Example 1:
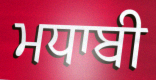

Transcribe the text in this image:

ਮਧਾਬੀ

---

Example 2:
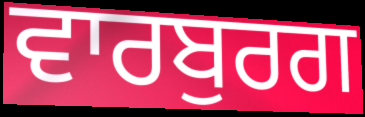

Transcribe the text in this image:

ਵਾਰਬੁਰਗ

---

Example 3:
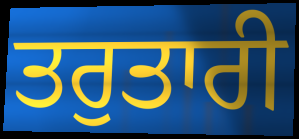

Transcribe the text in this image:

ਤਰੁਤਾਰੀ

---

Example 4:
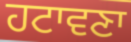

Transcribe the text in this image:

ਹਟਾਵਣਾ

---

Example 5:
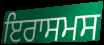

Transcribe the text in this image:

ਇਰਾਸਮਸ